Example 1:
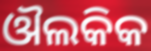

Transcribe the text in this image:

ଔଲକିକ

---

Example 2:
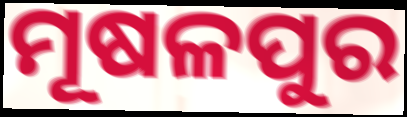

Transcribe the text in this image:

ମୂଷଳପୁର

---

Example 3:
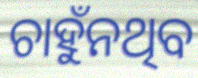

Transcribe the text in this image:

ଚାହୁଁନଥିବ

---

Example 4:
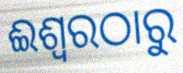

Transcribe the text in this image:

ଈଶ୍ୱରଠାରୁ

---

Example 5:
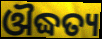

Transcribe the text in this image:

ଔଦ୍ଧତ୍ୟ